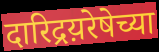
दारिद्रय़रेषेच्या